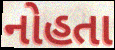
નોહતા